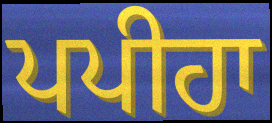
ਪਪੀਹਾ